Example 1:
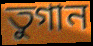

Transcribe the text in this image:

তুগান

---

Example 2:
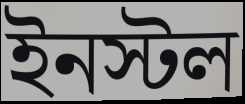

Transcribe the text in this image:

ইনস্টল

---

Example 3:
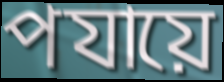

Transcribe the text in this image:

পযায়ে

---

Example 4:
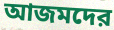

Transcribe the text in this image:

আজমদের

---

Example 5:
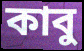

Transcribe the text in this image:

কাবু